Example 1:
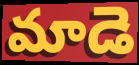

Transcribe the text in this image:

మాడె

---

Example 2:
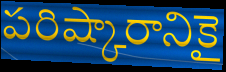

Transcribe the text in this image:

పరిష్కారానికై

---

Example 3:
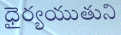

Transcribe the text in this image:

ధైర్యయుతుని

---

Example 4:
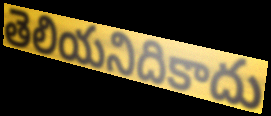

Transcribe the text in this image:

తెలియనిదికాదు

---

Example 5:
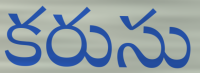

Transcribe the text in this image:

కరుసు